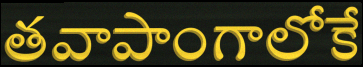
తవాపాంగాలోకే